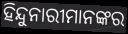
ହିନ୍ଦୁନାରୀମାନଙ୍କର